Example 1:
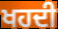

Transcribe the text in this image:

ਖਹਦੀ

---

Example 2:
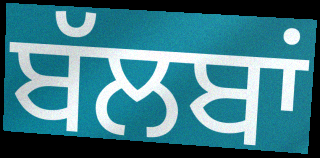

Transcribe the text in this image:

ਬੱਲਬਾਂ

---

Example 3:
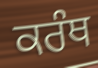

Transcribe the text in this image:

ਕਰੰਥ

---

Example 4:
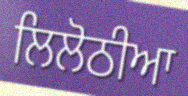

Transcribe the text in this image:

ਲਿਲੋਠੀਆ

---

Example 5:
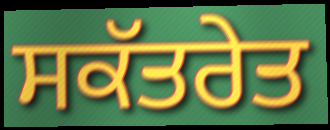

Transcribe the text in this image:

ਸਕੱਤਰੇਤ